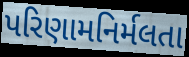
પરિણામનિર્મલતા